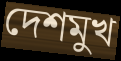
দেশমুখ